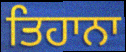
ਤਿਹਾਨਾ